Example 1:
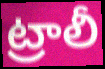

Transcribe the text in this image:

ట్రాలీ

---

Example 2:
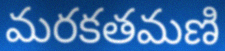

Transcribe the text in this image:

మరకతమణి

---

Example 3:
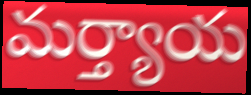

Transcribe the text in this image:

మర్త్యాయ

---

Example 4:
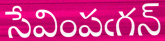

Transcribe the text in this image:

సేవింపఁగన్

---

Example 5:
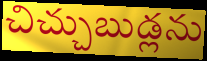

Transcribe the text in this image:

చిచ్చుబుడ్లను